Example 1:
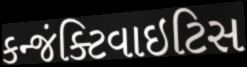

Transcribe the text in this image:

કન્જંક્ટિવાઇટિસ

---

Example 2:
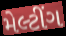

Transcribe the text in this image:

મેલ્ટીંગ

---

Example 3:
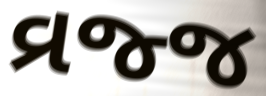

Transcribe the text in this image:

વ્રજ્જ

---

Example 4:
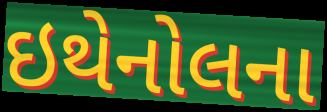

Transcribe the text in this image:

ઇથેનોલના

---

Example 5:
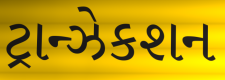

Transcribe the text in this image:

ટ્રાન્ઝેકશન